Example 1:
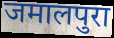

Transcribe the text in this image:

जमालपुरा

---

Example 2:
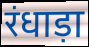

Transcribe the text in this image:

रंधाड़ा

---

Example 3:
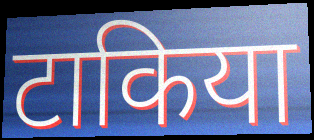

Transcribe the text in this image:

टाकिया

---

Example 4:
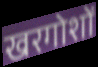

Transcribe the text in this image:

खरगोशों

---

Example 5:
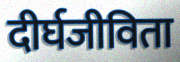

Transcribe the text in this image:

दीर्घजीविता